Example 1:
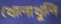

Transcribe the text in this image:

খোলাখুলি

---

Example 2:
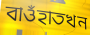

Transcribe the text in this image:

বাওঁহাতখন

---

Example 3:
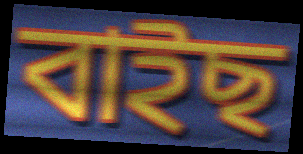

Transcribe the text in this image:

বাইছ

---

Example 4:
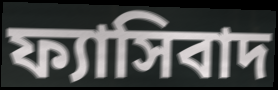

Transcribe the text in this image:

ফ্যাসিবাদ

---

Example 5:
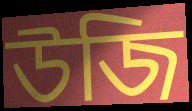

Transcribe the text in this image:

উজি